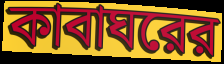
কাবাঘরের